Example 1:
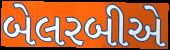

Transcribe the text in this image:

બેલરબીએ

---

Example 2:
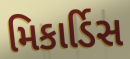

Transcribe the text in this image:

મિકાર્ડિસ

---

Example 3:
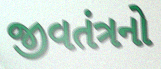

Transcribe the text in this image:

જીવતંત્રનો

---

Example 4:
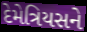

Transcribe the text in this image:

દેમેત્રિયસને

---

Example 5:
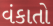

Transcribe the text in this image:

વંકાતો